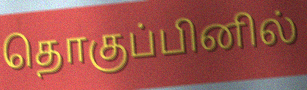
தொகுப்பினில்